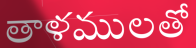
తాళములతో